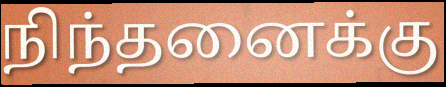
நிந்தனைக்கு